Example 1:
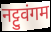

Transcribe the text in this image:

नट्टुवंगम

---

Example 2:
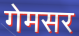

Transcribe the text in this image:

गेमसर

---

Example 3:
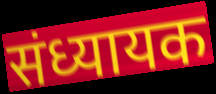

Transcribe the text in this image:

संध्यायक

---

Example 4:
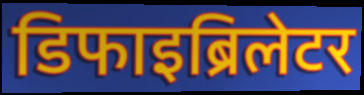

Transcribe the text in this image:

डिफाइब्रिलेटर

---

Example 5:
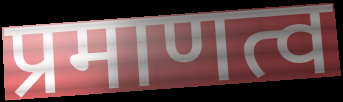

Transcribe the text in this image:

प्रमाणत्व